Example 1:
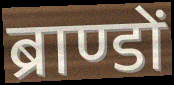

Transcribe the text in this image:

ब्राण्डों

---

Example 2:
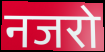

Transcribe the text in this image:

नजरो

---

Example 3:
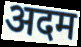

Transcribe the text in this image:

अदम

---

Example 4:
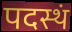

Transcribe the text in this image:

पदस्थं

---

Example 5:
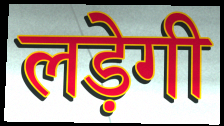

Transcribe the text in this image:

लड़ेगी